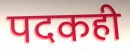
पदकही